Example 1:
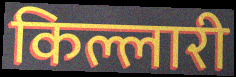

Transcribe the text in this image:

किल्लारी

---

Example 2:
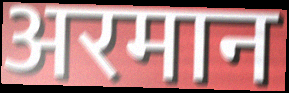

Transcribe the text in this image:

अरमान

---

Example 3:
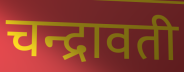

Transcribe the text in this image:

चन्द्रावती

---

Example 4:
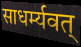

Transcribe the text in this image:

साधर्म्यवत्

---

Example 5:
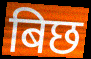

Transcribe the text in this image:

बिछ